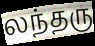
லந்தரு